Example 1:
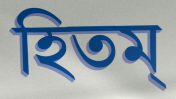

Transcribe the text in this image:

হিতম্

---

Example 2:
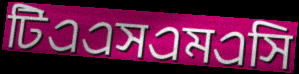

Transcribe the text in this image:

টিএএসএমএসি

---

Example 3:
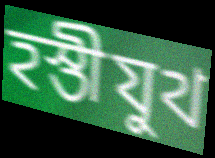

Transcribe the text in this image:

হস্তীযুথ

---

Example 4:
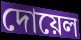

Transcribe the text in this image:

দোয়েল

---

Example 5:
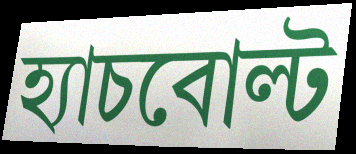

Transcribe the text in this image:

হ্যাচবোল্ট